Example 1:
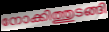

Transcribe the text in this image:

നോക്കിത്തുടങ്ങി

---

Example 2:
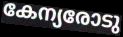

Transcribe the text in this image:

കേന്യരോടു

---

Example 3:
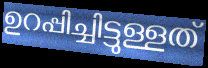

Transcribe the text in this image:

ഉറപ്പിച്ചിട്ടുള്ളത്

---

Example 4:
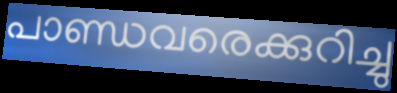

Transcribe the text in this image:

പാണ്ഡവരെക്കുറിച്ചു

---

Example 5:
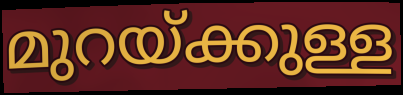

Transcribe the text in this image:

മുറയ്ക്കുള്ള